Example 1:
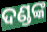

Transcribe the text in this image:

ଦଣ୍ଡଙ୍କ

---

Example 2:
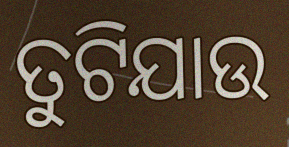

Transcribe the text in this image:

ତୁଟିଯାଉ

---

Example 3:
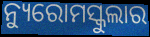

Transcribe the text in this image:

ନ୍ୟୁରୋମସ୍କୁଲାର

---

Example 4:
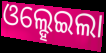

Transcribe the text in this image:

ଓଲ୍ହେଇଲା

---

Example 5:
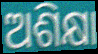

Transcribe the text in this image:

ଅଶିକ୍ଷା